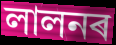
লালনৰ